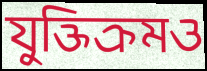
যুক্তিক্রমও